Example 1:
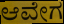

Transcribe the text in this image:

ಆವೇಗ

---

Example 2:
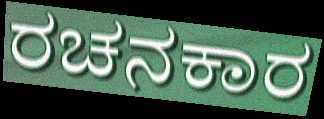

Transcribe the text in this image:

ರಚನಕಾರ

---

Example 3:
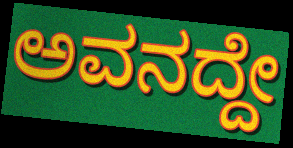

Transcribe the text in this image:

ಅವನದ್ದೇ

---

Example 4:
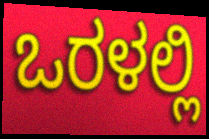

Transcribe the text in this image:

ಒರಳಲ್ಲಿ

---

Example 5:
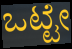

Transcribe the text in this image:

ಒಟ್ಟೇ